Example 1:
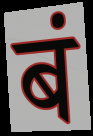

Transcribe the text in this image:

बं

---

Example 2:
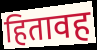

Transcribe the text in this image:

हितावह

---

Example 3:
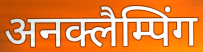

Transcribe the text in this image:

अनक्लैम्पिंग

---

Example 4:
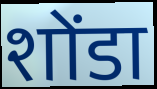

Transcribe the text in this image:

शोंडा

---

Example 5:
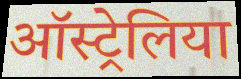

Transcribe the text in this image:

ऑस्‍ट्रेलिया